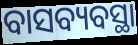
ବାସବ୍ୟବସ୍ଥା